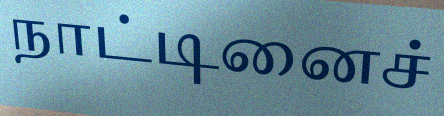
நாட்டினைச்